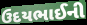
ઉદયભાઈની